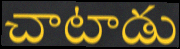
చాటాడు